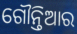
ଗୌନ୍ତିଆର